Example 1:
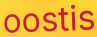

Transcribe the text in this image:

oostis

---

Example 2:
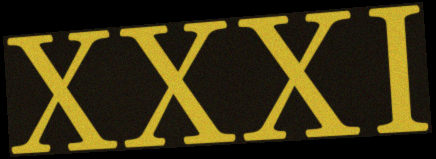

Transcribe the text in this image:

XXXI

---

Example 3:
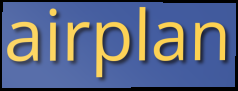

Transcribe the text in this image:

airplan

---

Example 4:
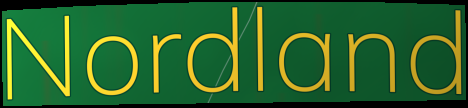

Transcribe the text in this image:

Nordland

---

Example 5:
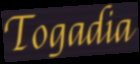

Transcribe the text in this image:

Togadia